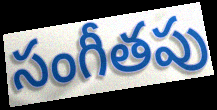
సంగీతపు